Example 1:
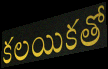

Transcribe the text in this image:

కలయికతో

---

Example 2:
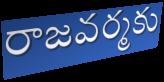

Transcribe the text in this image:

రాజవర్మకు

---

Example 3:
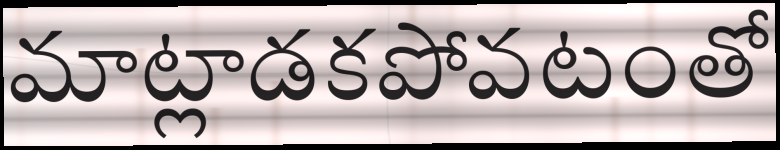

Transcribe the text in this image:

మాట్లాడకపోవటంతో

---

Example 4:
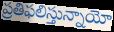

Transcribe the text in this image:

ప్రతిఫలిస్తున్నాయో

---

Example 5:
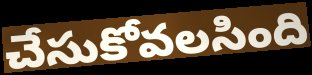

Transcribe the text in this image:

చేసుకోవలసింది